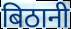
बिठानी